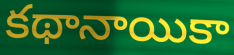
కథానాయికా